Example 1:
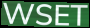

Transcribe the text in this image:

WSET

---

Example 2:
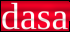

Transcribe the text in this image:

dasa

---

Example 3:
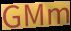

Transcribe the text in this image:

GMm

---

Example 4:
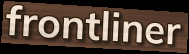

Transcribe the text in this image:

frontliner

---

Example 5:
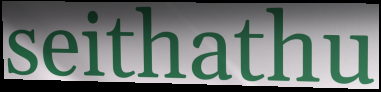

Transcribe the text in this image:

seithathu